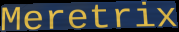
Meretrix